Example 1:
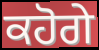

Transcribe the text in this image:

ਕਹੋਗੇ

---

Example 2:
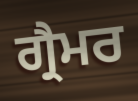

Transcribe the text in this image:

ਗ੍ਰੈਮਰ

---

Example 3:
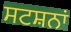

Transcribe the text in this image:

ਸਟਸ਼ਨਾਂ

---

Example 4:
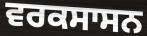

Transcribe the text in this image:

ਵਰਕਸਾਸਨ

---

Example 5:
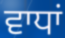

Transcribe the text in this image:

ਵਾਧਾਂ